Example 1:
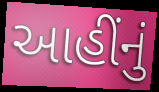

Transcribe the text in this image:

આહીંનું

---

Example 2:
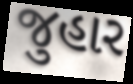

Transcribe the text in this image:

જુહાર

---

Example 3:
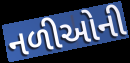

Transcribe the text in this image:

નળીઓની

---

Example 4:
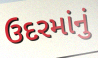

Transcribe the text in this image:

ઉદરમાંનું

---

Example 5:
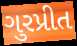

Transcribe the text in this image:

ગુરપ્રીત